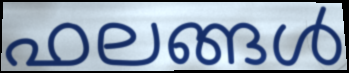
ഫലങ്ങൾ